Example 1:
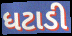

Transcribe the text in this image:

ધટાડી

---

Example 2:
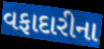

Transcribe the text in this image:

વફાદારીના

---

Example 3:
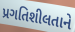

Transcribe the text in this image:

પ્રગતિશીલતાને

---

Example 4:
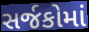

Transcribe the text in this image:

સર્જકોમાં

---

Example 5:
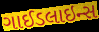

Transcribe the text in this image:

ગાઈડલાઇન્સ